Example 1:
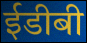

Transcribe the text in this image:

ईडीबी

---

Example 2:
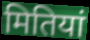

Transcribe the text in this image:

मितियां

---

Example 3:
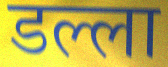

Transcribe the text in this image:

डल्ला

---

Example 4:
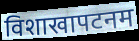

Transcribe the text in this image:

विशाखापटनम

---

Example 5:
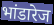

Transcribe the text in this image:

भांडारेज